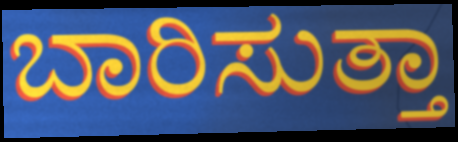
ಬಾರಿಸುತ್ತಾ